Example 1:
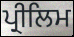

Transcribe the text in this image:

ਪ੍ਰੀਲਿਮ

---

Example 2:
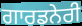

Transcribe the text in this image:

ਗਾਰਡਨੇਰੀ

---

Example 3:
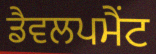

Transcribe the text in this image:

ਡੈਵਲਪਮੈਂਟ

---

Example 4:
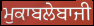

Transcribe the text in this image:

ਮੁਕਾਬਲੇਬਾਜੀ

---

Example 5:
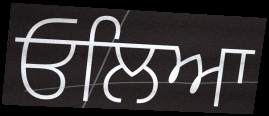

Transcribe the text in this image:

ਓਲਿਆ